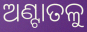
ଅଣ୍ଟାତଳୁ